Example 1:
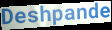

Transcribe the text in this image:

Deshpande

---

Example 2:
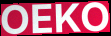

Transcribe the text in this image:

OEKO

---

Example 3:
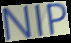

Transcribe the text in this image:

NIP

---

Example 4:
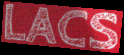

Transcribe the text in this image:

LACS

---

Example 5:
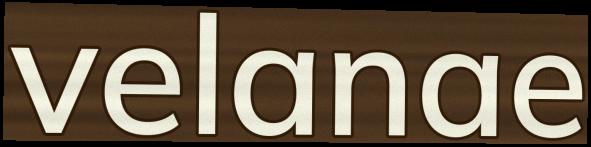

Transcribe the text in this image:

velanae